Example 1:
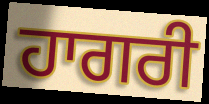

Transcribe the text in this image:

ਹਾਗਰੀ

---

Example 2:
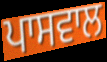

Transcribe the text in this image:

ਪਾਸਵਾਲ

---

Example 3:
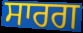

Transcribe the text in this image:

ਸਾਰਗ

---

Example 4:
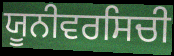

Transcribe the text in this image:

ਯੂਨੀਵਰਸਿਚੀ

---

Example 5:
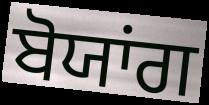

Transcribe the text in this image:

ਬੋਯਾਂਗ